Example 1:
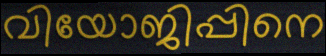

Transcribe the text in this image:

വിയോജിപ്പിനെ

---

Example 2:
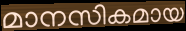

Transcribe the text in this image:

മാനസികമായ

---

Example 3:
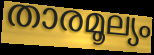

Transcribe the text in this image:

താരമൂല്യം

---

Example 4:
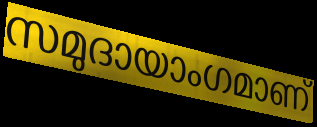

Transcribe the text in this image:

സമുദായാംഗമാണ്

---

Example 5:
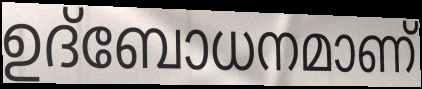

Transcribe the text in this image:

ഉദ്ബോധനമാണ്